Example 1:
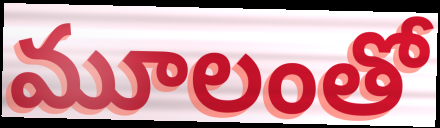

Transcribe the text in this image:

మూలంతో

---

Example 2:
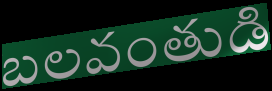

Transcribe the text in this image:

బలవంతుడి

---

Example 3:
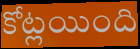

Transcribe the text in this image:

కోట్లయింది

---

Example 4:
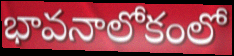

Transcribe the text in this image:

భావనాలోకంలో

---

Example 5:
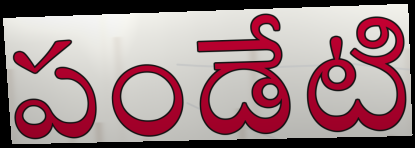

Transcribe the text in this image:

పండేటి